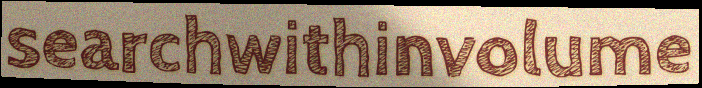
searchwithinvolume